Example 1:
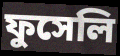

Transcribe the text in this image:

ফুসেলি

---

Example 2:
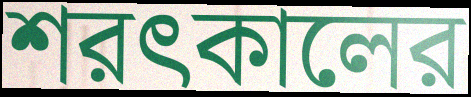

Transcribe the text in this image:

শরৎকালের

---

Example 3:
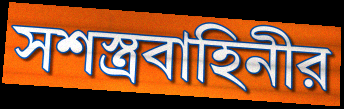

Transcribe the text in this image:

সশস্ত্রবাহিনীর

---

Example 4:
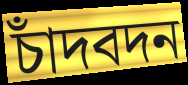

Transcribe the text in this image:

চাঁদবদন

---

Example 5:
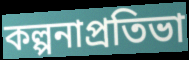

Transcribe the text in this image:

কল্পনাপ্রতিভা